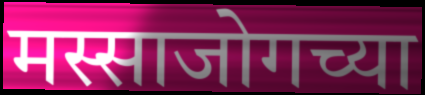
मस्साजोगच्या